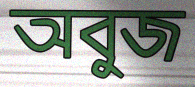
অবুজ